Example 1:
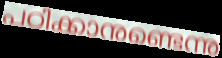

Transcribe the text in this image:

പഠിക്കാനുണ്ടെന്നു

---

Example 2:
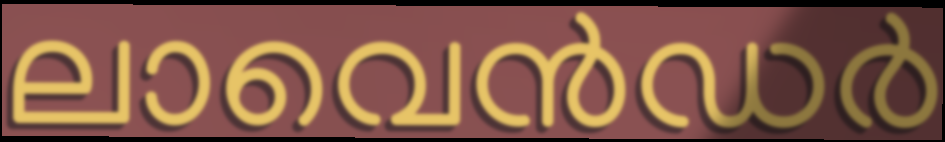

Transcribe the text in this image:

ലാവെൻഡർ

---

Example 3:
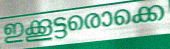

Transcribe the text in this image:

ഇക്കൂട്ടരൊക്കെ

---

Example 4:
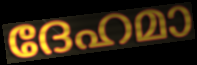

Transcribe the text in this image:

ദേഹമാ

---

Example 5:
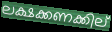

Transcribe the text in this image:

ലക്ഷക്കണക്കില്